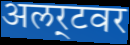
अलर्टवर